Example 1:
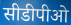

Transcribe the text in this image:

सीडीपीओ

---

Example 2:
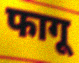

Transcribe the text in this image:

फागू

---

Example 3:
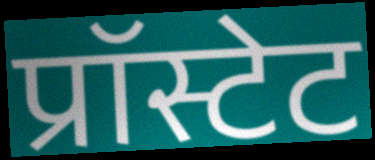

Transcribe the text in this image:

प्रॉस्टेट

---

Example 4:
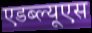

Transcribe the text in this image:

एडब्ल्यूएस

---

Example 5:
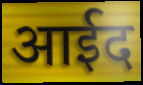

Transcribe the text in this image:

आईद